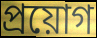
প্ৰয়োগ